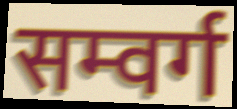
सम्वर्ग